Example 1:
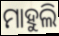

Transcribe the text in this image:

ମାହୁଲି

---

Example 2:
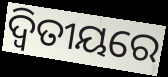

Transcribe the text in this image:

ଦ୍ଵିତୀୟରେ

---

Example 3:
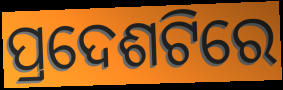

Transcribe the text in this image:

ପ୍ରଦେଶଟିରେ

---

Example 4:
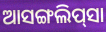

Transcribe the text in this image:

ଆସଙ୍ଗଲିପ୍‌ସା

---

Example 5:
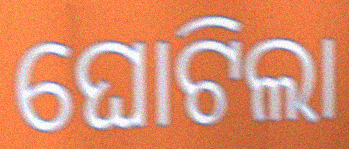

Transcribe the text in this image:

ଘୋଟିଲା